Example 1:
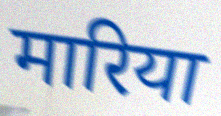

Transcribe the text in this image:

मारिया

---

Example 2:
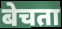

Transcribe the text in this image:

बेचता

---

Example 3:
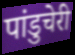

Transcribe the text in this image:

पांडुचेरी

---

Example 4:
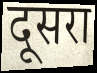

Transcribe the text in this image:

दूसरा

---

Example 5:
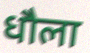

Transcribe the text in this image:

धौला